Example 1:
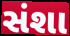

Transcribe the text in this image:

સંશા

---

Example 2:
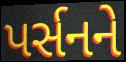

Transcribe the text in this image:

પર્સનને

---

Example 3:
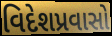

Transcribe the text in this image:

વિદેશપ્રવાસો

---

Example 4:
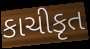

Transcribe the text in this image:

કાચીકૃત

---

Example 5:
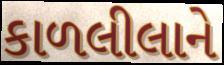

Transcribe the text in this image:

કાળલીલાને